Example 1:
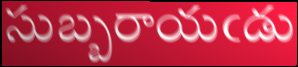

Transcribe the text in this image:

సుబ్బరాయఁడు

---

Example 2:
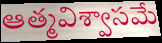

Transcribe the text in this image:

ఆత్మవిశ్వాసమే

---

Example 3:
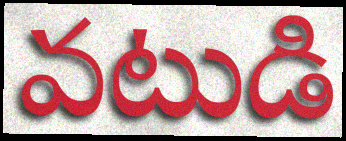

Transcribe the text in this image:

వటుడి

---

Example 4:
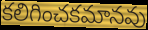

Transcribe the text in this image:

కలిగించకమానవు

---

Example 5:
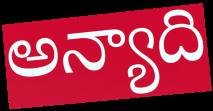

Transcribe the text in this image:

అన్యాది